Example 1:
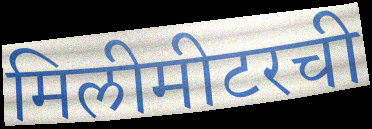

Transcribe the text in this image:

मिलीमीटरची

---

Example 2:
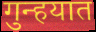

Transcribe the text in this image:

गुन्हयात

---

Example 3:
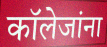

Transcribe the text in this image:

कॉलेजांना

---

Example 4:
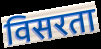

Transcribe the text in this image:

विसरता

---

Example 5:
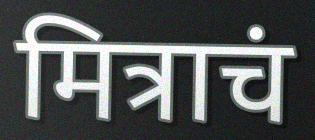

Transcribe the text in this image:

मित्राचं